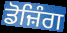
ਡੋਜ਼ਿੰਗ